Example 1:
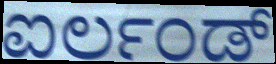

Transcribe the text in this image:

ಐರ್ಲಂಡ್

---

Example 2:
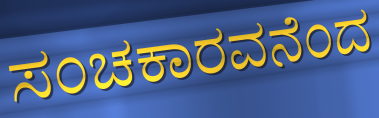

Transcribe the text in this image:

ಸಂಚಕಾರವನೆಂದ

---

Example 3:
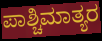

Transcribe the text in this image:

ಪಾಶ್ಚಿಮಾತ್ಯರ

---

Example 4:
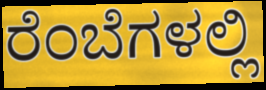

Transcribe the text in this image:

ರೆಂಬೆಗಳಲ್ಲಿ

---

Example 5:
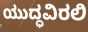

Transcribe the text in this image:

ಯುದ್ಧವಿರಲಿ